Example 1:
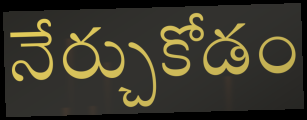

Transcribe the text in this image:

నేర్చుకోడం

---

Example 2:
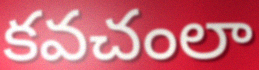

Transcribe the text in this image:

కవచంలా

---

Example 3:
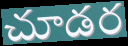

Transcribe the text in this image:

చూడర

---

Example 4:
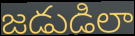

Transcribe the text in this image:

జడుడిలా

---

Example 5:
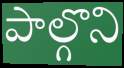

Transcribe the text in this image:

పాల్గొని